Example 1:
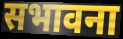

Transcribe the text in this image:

सभावना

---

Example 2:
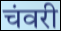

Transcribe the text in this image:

चंवरी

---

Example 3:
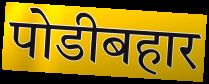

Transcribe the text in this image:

पोडीबहार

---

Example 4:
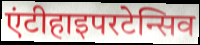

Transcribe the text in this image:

एंटीहाइपरटेन्सिव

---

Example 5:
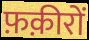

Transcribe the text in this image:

फ़क़ीरों